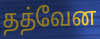
தத்வேன